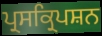
ਪ੍ਰਸਕ੍ਰਿਪਸ਼ਨ